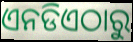
ଏନଡିଏଠାରୁ